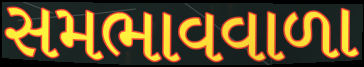
સમભાવવાળા